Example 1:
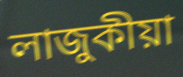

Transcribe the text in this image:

লাজুকীয়া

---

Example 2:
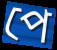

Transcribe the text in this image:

পে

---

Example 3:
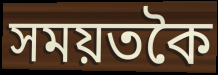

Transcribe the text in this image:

সময়তকৈ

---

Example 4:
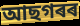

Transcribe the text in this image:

আছগৰৰ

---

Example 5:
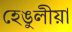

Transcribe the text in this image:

হেঙুলীয়া